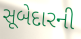
સૂબેદારની